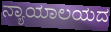
ನ್ಯಾಯಾಲಯದ